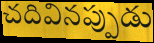
చదివినప్పుడు